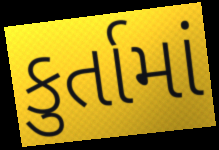
કુર્તામાં